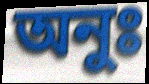
অনুঃ